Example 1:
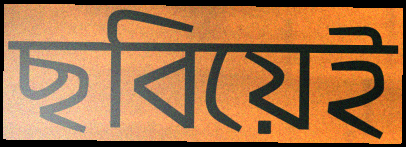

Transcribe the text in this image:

ছবিয়েই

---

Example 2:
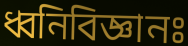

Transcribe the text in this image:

ধ্বনিবিজ্ঞানঃ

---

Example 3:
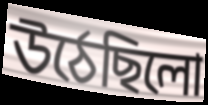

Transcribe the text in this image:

উঠেছিলো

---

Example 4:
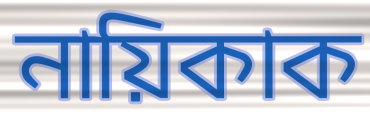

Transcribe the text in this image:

নায়িকাক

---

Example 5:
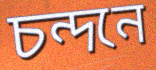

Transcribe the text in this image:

চন্দনে